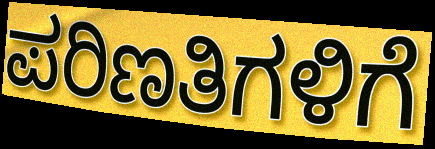
ಪರಿಣತಿಗಳಿಗೆ